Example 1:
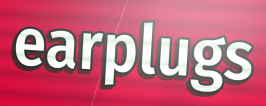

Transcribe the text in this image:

earplugs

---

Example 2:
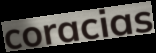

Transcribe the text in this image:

coracias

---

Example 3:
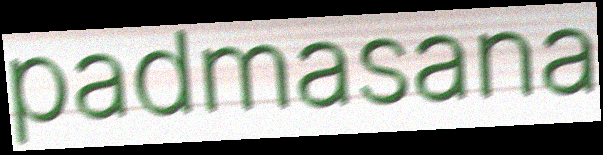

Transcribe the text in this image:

padmasana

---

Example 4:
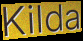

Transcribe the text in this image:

Kilda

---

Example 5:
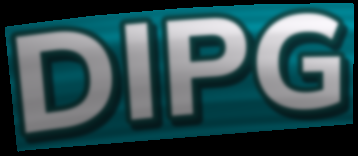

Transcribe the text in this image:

DIPG